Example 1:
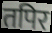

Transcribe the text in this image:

तपिर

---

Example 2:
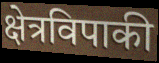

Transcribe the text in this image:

क्षेत्रविपाकी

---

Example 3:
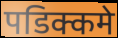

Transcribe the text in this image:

पडिक्कमे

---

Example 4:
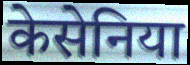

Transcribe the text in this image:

केसेनिया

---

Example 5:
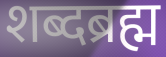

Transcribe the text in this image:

शब्दब्रह्म